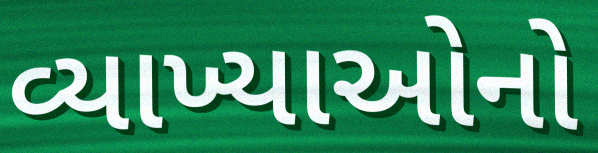
વ્યાખ્યાઓનો